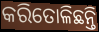
କରିତୋଳିଛନ୍ତି